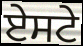
ਏਸਟੇ